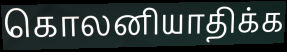
கொலனியாதிக்க